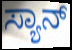
ಸ್ಯಾನ್